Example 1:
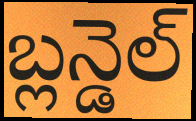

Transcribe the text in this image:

బ్లన్డెల్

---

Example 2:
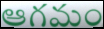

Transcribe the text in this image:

ఆగమం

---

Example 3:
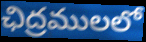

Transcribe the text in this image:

ఛిద్రములలో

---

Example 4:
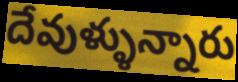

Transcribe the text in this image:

దేవుళ్ళున్నారు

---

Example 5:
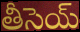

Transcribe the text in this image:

తీసెయ్